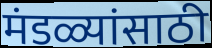
मंडळ्यांसाठी